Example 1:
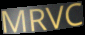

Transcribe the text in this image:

MRVC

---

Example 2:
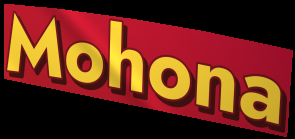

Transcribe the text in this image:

Mohona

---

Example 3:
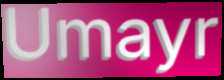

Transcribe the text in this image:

Umayr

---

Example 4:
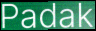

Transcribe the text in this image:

Padak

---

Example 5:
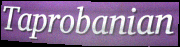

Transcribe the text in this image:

Taprobanian